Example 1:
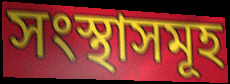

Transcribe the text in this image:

সংস্থাসমূহ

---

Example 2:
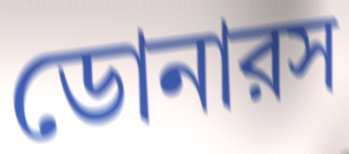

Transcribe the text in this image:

ডোনারস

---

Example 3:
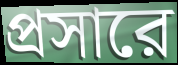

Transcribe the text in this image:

প্রসারে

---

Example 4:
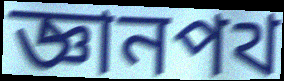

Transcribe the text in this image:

জ্ঞানপথ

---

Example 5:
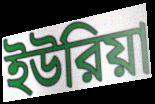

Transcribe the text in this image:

ইউরিয়া